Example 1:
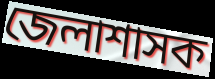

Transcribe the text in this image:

জেলাশাসক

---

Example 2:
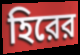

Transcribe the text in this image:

হিরের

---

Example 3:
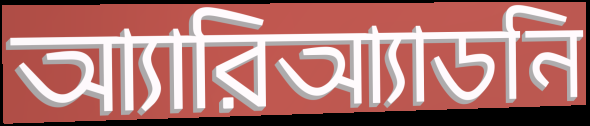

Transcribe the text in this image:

আ্যারিআ্যাডনি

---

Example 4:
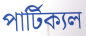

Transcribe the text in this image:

পার্টিক্যল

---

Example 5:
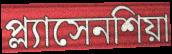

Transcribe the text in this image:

প্ল্যাসেনশিয়া